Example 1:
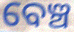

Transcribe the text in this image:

ବେଞ୍ଚ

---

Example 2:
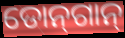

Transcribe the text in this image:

ଡୋନ୍‌ଗାନ୍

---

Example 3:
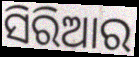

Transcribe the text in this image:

ସିରିଆର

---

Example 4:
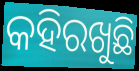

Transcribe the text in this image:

କହିରଖୁଛି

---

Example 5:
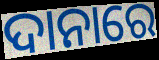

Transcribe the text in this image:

ଦାନାରେ